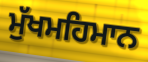
ਮੁੱਖਮਹਿਮਾਨ